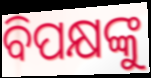
ବିପକ୍ଷଙ୍କୁ